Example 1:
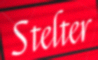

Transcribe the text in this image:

Stelter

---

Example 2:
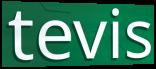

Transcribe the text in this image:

tevis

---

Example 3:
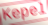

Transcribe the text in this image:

Kepel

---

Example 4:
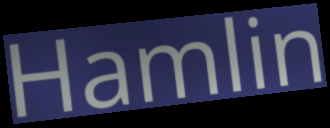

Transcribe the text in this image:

Hamlin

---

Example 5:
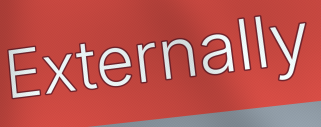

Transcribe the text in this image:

Externally